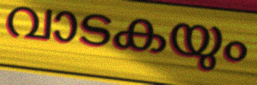
വാടകയും